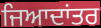
ਜਿਆਦਾਂਤਰ